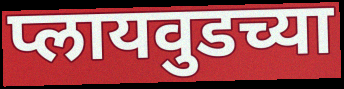
प्लायवुडच्या